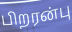
பிறரன்பு